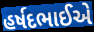
હર્ષદભાઈએ